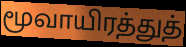
மூவாயிரத்துத்